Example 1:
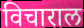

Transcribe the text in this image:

विचाराल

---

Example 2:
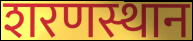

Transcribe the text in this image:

शरणस्थान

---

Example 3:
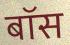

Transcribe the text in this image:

बॉस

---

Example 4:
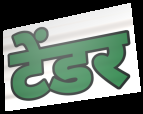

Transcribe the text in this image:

टेंडर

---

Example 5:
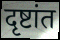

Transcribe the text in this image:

दृष्टांत